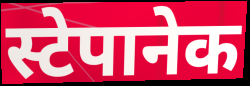
स्टेपानेक